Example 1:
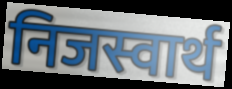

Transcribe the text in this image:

निजस्वार्थ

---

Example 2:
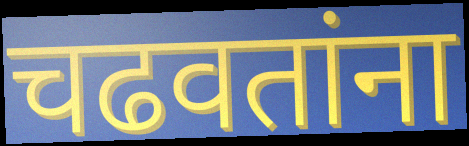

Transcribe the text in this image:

चढवतांना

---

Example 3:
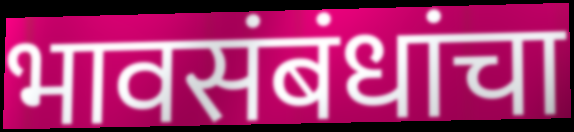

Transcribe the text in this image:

भावसंबंधांचा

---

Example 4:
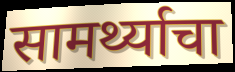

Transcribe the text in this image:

सामर्थ्याचा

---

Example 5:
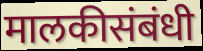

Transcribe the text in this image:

मालकीसंबंधी